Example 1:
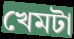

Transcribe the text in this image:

খেমটা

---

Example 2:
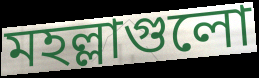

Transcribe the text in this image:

মহল্লাগুলো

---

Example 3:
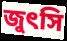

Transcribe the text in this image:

জুৎসি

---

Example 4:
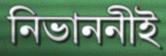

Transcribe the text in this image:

নিভাননীই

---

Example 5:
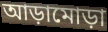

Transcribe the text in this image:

আড়ামোড়া